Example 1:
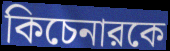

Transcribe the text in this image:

কিচেনারকে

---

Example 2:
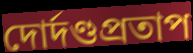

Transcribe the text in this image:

দোর্দণ্ডপ্রতাপ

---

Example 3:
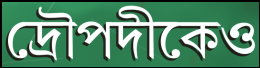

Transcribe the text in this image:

দ্রৌপদীকেও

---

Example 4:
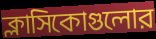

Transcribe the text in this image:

ক্লাসিকোগুলোর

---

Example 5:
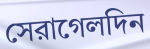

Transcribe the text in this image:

সেরাগেলদিন